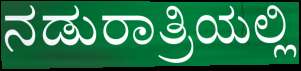
ನಡುರಾತ್ರಿಯಲ್ಲಿ